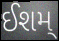
ઈશમ્